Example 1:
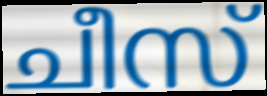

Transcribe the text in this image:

ചീസ്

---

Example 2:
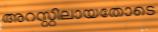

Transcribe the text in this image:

അറസ്റ്റിലായതോടെ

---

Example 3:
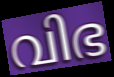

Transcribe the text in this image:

വിഭ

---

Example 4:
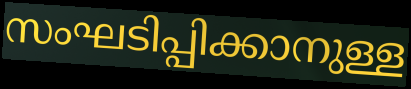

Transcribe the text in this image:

സംഘടിപ്പിക്കാനുള്ള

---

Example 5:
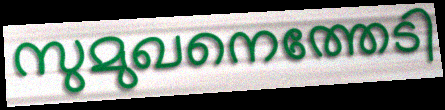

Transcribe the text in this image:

സുമുഖനെത്തേടി